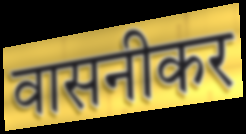
वासनीकर